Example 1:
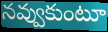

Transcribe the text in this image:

నవ్వుకుంటూ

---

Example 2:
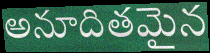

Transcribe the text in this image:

అనూదితమైన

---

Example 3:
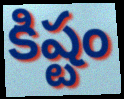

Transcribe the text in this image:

కిష్టం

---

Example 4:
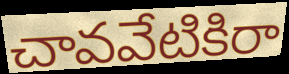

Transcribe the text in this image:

చావవేటికిరా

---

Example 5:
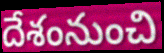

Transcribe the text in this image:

దేశంనుంచి